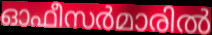
ഓഫീസർമാരിൽ